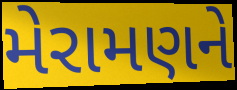
મેરામણને